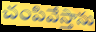
చంపివేస్తాను